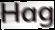
Hag